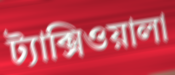
ট্যাক্সিওয়ালা